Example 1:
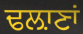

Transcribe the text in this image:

ਢਲ਼ਾਣਾਂ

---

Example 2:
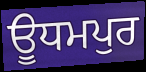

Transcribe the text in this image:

ਊਧਮਪੁਰ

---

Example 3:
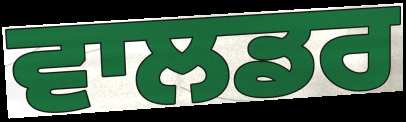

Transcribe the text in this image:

ਵਾਲਡਰ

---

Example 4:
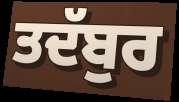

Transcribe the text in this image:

ਤਦੱਬੁਰ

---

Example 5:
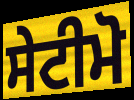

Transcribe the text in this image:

ਸੇਟੀਮੋ